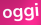
oggi